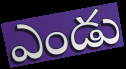
ఎండు